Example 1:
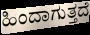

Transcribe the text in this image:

ಹಿಂದಾಗುತ್ತದೆ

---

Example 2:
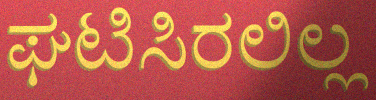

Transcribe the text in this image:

ಘಟಿಸಿರಲಿಲ್ಲ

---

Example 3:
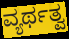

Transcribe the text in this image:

ವ್ಯರ್ಥತ್ವ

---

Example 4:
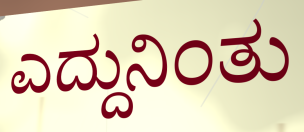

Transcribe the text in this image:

ಎದ್ದುನಿಂತು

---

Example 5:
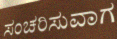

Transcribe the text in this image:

ಸಂಚರಿಸುವಾಗ